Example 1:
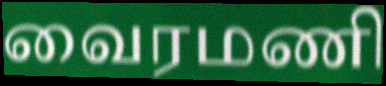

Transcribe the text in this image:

வைரமணி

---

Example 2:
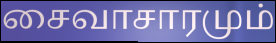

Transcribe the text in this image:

சைவாசாரமும்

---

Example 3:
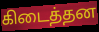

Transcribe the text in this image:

கிடைத்தன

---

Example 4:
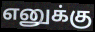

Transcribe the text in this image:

எனுக்கு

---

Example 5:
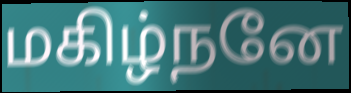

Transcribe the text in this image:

மகிழ்நனே